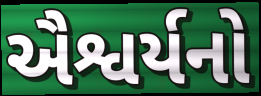
ઐશ્વર્યનો